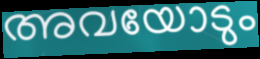
അവയോടും